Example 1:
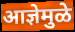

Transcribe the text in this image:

आज्ञेमुळे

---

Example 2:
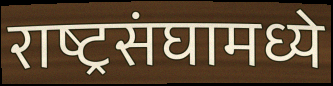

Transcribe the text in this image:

राष्ट्रसंघामध्ये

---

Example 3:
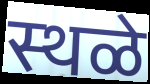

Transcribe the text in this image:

स्थळे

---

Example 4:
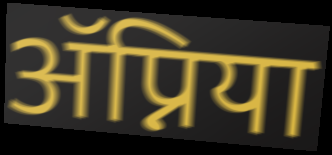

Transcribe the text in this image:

ॲप्निया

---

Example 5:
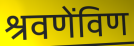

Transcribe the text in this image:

श्रवणेंविण